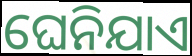
ଘେନିଯାଏ